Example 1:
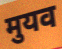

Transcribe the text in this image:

मुयव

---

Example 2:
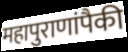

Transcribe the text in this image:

महापुराणांपैकी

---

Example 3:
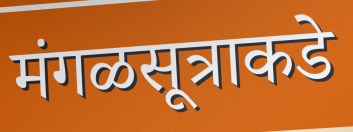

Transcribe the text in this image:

मंगळसूत्राकडे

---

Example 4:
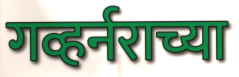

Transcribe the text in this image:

गव्हर्नराच्या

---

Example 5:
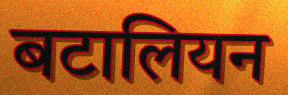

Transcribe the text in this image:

बटालियन